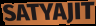
SATYAJIT